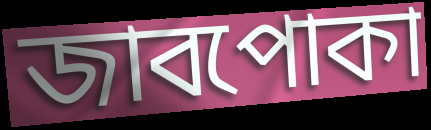
জাবপোকা